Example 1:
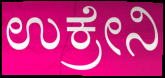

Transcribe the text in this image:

ಉಕ್ರೇನಿ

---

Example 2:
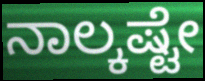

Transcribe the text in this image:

ನಾಲ್ಕಷ್ಟೇ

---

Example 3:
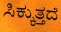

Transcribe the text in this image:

ಸಿಕ್ಕುತ್ತದೆ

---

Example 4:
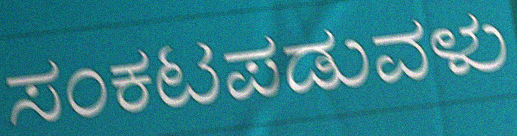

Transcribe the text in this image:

ಸಂಕಟಪಡುವಳು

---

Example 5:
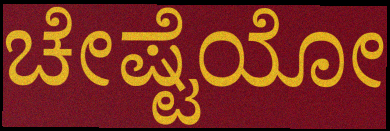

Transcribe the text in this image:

ಚೇಷ್ಟೆಯೋ